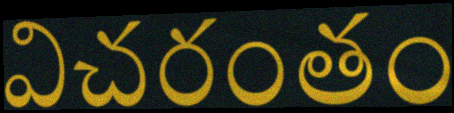
విచరంతం